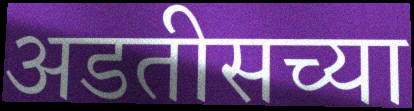
अडतीसच्या